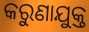
କରୁଣାଯୁକ୍ତ